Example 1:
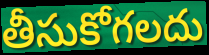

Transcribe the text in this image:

తీసుకోగలదు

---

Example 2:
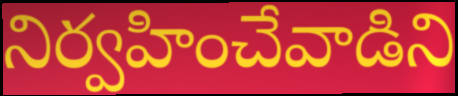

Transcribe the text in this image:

నిర్వహించేవాడిని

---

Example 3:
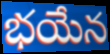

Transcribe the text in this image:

భయేన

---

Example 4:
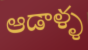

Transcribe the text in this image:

ఆడాళ్ళ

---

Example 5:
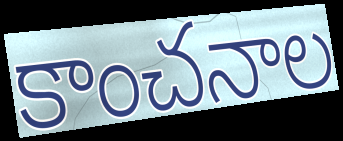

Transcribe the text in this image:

కాంచనాల